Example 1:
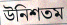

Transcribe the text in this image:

উনিশতম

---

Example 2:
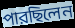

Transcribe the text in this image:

পারছিলেন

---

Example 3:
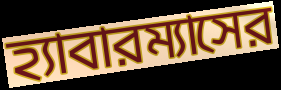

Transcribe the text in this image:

হ্যাবারম্যাসের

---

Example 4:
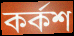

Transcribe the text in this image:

কর্কশ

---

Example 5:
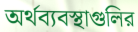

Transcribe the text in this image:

অর্থব্যবস্থাগুলির